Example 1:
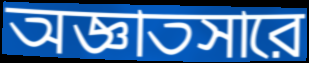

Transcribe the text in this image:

অজ্ঞাতসারে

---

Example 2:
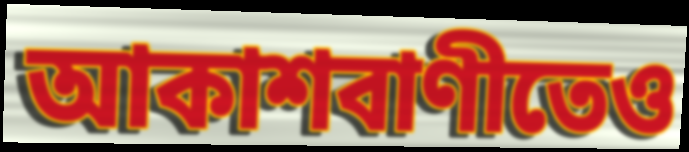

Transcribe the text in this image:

আকাশবাণীতেও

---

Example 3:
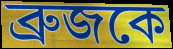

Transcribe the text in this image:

ব্রুজকে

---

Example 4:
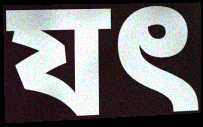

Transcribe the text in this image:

যৎ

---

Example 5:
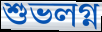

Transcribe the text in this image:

শুভলগ্ন